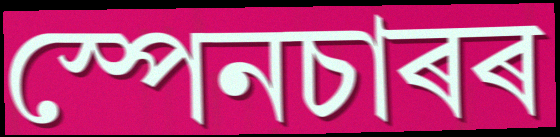
স্পেনচাৰৰ